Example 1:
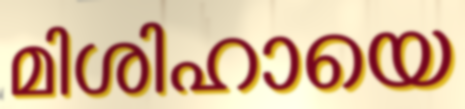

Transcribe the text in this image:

മിശിഹായെ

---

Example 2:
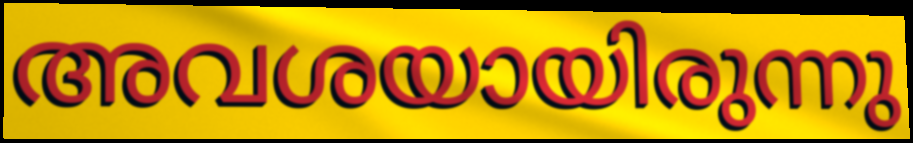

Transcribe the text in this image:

അവശയായിരുന്നു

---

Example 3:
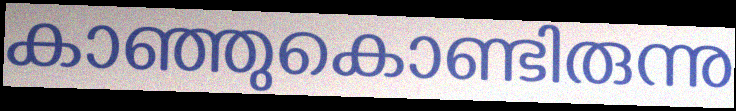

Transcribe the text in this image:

കാഞ്ഞുകൊണ്ടിരുന്നു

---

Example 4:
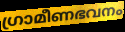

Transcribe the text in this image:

ഗ്രാമീണഭവനം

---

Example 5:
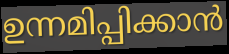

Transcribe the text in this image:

ഉന്നമിപ്പിക്കാൻ